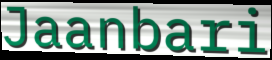
Jaanbari